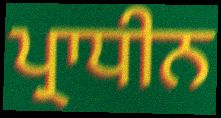
ਪ੍ਰਾਧੀਨ